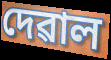
দেৱাল